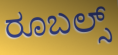
ರೂಬಲ್ಸ್